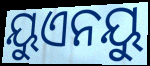
ୟୁଏନୟୁ